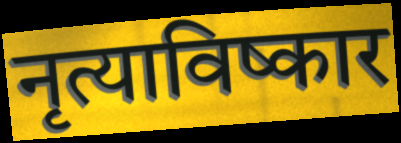
नृत्याविष्कार